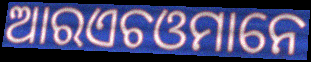
ଆରଏଚଓମାନେ